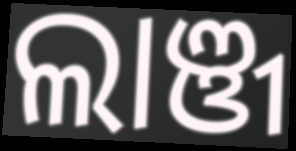
ଲାଞ୍ଜ